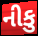
નીકુ